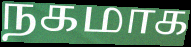
நகமாக